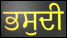
ਭਸੁਦੀ